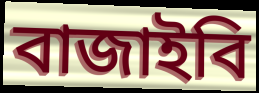
বাজাইবি